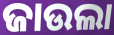
ଜାଉଲା